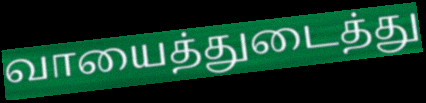
வாயைத்துடைத்து